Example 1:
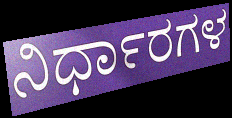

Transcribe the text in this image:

ನಿರ್ಧಾರಗಳ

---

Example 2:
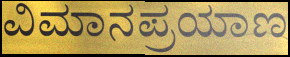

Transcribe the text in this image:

ವಿಮಾನಪ್ರಯಾಣ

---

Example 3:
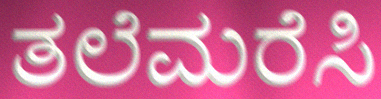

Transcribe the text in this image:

ತಲೆಮರೆಸಿ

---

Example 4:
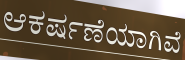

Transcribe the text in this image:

ಆಕರ್ಷಣೆಯಾಗಿವೆ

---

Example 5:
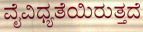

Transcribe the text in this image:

ವೈವಿಧ್ಯತೆಯಿರುತ್ತದೆ